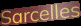
Sarcelles